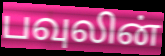
பவுலின்